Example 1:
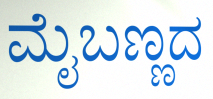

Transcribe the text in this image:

ಮೈಬಣ್ಣದ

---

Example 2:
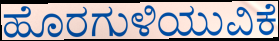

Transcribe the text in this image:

ಹೊರಗುಳಿಯುವಿಕೆ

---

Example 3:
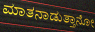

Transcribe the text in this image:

ಮಾತನಾಡುತ್ತಾನೋ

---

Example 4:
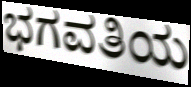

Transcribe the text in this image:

ಭಗವತಿಯ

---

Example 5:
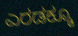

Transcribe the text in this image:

ಎರಡಕ್ಕೂ